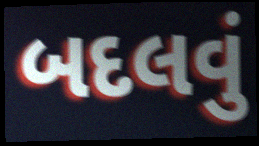
બદલવું